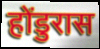
होंडुरास